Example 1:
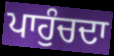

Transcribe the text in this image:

ਪਾਹੁੰਚਦਾ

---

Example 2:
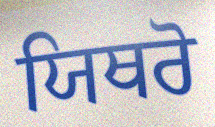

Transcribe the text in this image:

ਯਿਥਰੋ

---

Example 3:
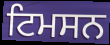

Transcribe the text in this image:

ਟਿਮਸਨ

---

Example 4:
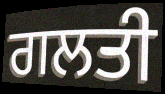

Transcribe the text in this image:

ਗਲਤੀ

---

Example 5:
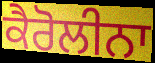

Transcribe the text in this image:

ਕੈਰੋਲੀਨਾ